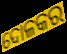
ଦୋଳକର